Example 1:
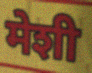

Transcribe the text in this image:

मेशी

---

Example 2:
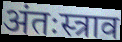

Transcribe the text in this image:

अंतःस्त्राव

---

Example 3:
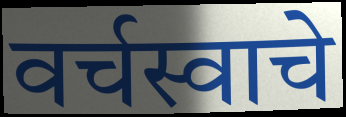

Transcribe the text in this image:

वर्चस्वाचे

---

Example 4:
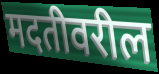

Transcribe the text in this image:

मदतीवरील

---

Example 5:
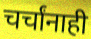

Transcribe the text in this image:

चर्चांनाही